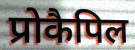
प्रोकैपिल